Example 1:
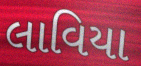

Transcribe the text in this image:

લાવિયા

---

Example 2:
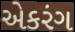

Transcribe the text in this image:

એકરંગ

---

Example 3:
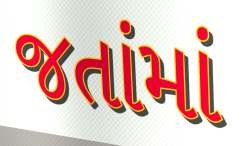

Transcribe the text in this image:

જતાંમાં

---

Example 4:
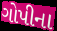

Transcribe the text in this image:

ગોપીના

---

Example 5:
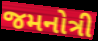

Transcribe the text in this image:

જમનોત્રી